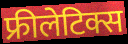
फ्रीलेटिक्स